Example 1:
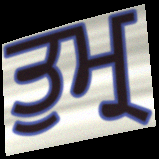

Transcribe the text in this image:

ਤੁਮ੍ਰ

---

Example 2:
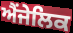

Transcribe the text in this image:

ਐਂਜੇਲਿਕ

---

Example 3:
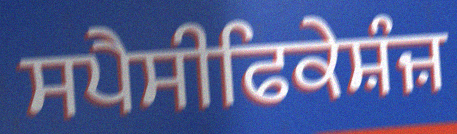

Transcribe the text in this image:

ਸਪੈਸੀਫਿਕੇਸ਼ੰਜ਼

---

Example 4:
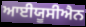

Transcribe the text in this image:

ਆਈਯੂਸੀਐਨ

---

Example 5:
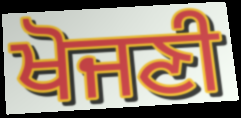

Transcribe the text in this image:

ਖੋਜਣੀ